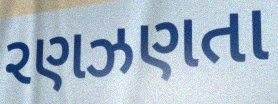
રણઝણતા